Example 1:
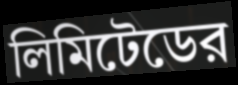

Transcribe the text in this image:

লিমিটেডের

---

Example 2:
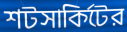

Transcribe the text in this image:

শটসার্কিটের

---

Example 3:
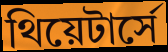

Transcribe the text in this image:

থিয়েটার্সে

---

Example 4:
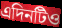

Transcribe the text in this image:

এদিনটিও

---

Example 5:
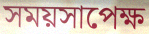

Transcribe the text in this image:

সময়সাপেক্ষ